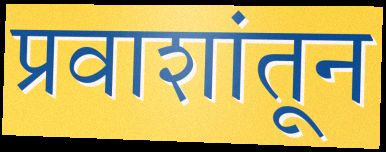
प्रवाशांतून